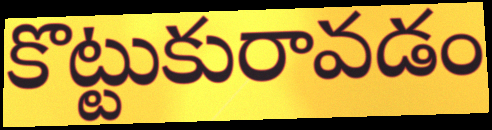
కొట్టుకురావడం